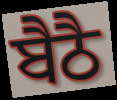
ਬੈਠੈ